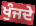
ਖੁੰਜਦੇ